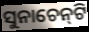
ସୁନାଚେନ୍‍ଟି